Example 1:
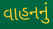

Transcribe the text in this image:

વાહનનું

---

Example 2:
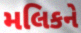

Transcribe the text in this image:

મલિકને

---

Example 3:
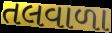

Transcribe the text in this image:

તલવાળા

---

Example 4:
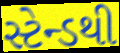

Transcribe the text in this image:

સ્ટેન્ડથી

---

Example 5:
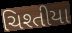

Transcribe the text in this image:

ચિશ્તીયા